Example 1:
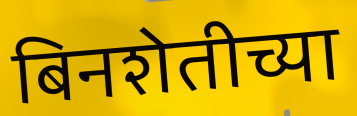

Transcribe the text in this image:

बिनशेतीच्या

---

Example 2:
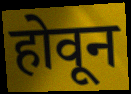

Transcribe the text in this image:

होवून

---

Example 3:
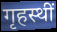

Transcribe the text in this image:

गृहस्थीं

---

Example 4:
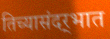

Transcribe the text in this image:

तिच्यासंदर्भात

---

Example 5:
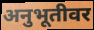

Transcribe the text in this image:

अनुभूतीवर